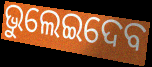
ଭୁଲେଇଦେବ